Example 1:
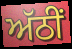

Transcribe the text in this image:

ਅੱਠੀਂ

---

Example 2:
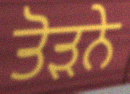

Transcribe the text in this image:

ਤੋੜਨੇ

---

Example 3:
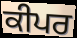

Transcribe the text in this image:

ਕੀਪਰ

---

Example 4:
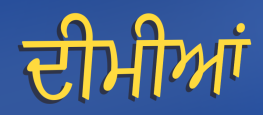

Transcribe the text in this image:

ਦੀਮੀਆਂ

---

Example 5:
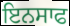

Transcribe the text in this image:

ਇਨਸਾਫ